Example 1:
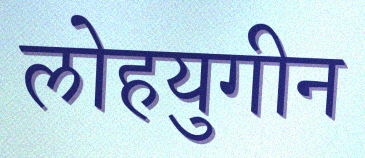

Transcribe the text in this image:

लोहयुगीन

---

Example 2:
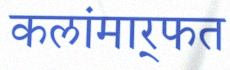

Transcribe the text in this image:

कलांमार्फत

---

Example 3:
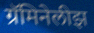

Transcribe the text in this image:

ग्रॅमिनेलीझ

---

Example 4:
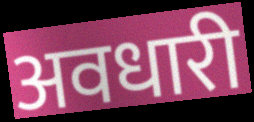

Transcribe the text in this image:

अवधारी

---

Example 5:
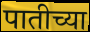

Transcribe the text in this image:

पातीच्या